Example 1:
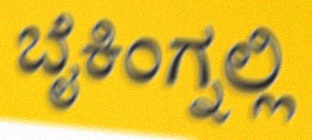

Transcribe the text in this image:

ಬೈಕಿಂಗ್ನಲ್ಲಿ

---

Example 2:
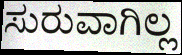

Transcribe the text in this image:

ಸುರುವಾಗಿಲ್ಲ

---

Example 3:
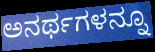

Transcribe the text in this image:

ಅನರ್ಥಗಳನ್ನೂ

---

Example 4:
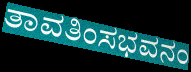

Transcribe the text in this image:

ತಾವತಿಂಸಭವನಂ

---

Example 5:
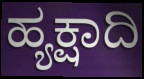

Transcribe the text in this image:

ಹ್ಯಕ್ಷಾದಿ